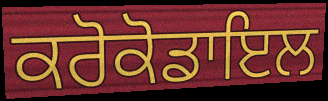
ਕਰੋਕੋਡਾਇਲ